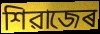
শিৱাজেৰ